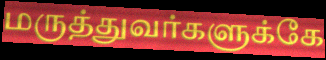
மருத்துவர்களுக்கே